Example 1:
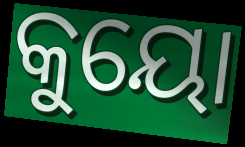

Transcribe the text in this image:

କୁୟୋ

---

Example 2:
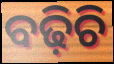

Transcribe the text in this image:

ବଢ଼ିଚି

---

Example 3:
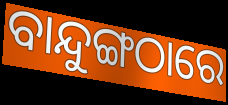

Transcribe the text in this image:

ବାନ୍ଦୁଙ୍ଗଠାରେ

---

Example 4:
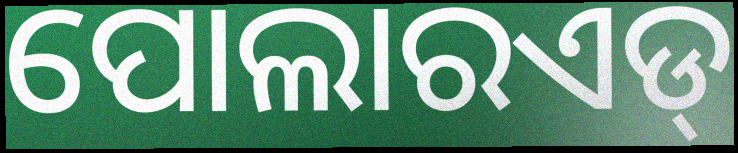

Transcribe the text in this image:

ପୋଲାରଏଡ୍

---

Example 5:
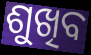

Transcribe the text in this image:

ଶୁଖିବ